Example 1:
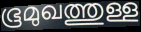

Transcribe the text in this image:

ഭൂമുഖത്തുള്ള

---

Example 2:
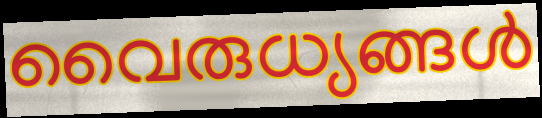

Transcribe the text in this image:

വൈരുധ്യങ്ങൾ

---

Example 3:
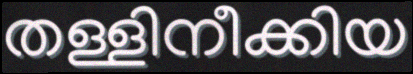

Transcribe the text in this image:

തള്ളിനീക്കിയ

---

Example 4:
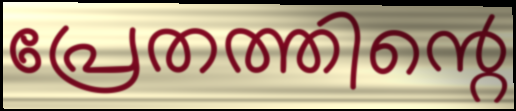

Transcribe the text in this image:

പ്രേതത്തിന്റെ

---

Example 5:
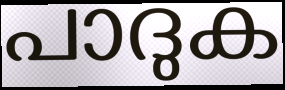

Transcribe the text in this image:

പാദുക